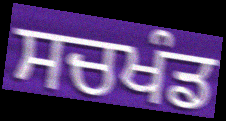
ਸਚਖੰਡ